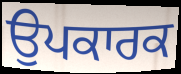
ਉਪਕਾਰਕ